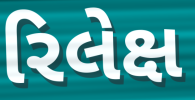
રિલેક્ષ